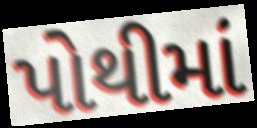
પોથીમાં